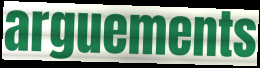
arguements